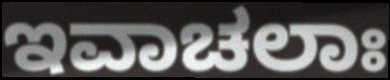
ಇವಾಚಲಾಃ